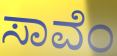
ಸಾವೆಂ